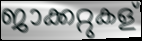
ജാക്കറ്റുകള്